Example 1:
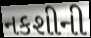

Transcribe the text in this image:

નકશીની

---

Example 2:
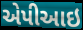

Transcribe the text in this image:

એપીઆઇ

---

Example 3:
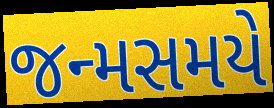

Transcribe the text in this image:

જન્મસમયે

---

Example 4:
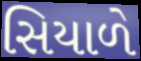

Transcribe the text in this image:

સિયાળે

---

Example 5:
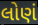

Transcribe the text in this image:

લોણં